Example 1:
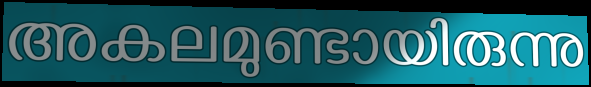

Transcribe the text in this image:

അകലമുണ്ടായിരുന്നു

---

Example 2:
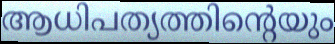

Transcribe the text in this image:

ആധിപത്യത്തിന്റെയും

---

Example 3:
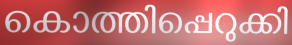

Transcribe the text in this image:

കൊത്തിപ്പെറുക്കി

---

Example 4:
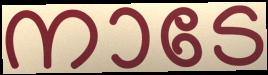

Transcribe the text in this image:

നാടേ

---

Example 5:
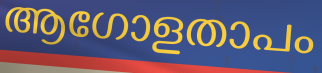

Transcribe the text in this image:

ആഗോളതാപം